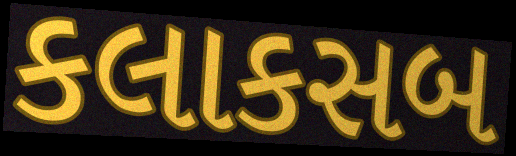
કલાકસબ